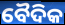
ବୈଦିକ